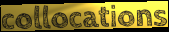
collocations